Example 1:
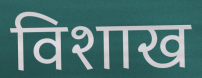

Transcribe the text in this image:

विशाख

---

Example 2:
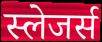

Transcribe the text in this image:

स्लेजर्स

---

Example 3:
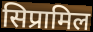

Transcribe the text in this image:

सिप्रामिल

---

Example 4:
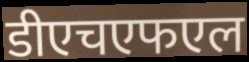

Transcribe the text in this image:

डीएचएफएल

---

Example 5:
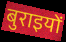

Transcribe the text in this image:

बुराइयों